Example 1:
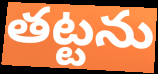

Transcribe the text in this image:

తట్టను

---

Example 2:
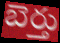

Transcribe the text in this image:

బెర్తు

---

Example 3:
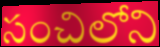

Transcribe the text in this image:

సంచిలోని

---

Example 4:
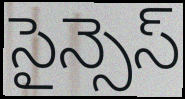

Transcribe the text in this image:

సైన్సెస్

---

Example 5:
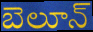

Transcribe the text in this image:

బెలూన్